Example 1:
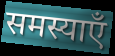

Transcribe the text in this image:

समस्याएँ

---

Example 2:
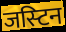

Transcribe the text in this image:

जस्‍टिन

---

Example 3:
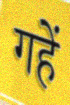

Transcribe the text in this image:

गहें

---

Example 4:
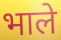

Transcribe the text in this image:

भाले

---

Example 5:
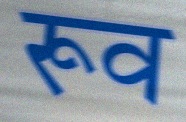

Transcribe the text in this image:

रूव